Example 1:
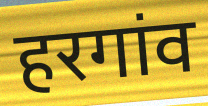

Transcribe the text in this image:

हरगांव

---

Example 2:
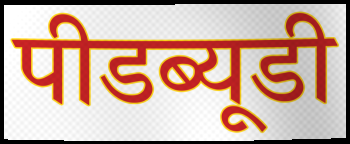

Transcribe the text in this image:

पीडब्यूडी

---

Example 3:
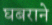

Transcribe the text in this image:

घबराने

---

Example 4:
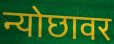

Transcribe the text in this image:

न्योछावर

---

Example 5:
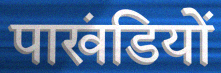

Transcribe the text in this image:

पाखंडियों